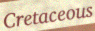
Cretaceous